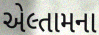
એલ્તામના